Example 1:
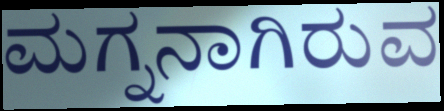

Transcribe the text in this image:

ಮಗ್ನನಾಗಿರುವ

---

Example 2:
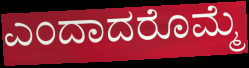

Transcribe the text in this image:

ಎಂದಾದರೊಮ್ಮೆ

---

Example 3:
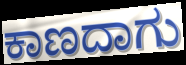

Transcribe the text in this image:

ಕಾಣದಾಗು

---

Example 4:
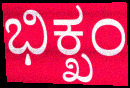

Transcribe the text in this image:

ಭಿಕ್ಖಂ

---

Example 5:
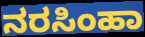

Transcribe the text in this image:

ನರಸಿಂಹಾ